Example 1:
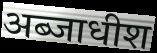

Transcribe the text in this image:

अब्जाधीश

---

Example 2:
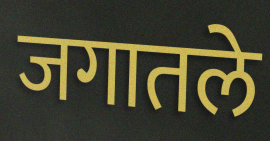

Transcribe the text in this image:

जगातले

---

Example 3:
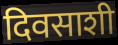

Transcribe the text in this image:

दिवसाशी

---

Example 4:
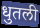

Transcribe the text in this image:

धुतली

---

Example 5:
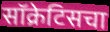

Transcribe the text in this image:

सॉक्रेटिसचा